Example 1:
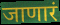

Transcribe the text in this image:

जाणारं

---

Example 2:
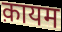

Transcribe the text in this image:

क़ायम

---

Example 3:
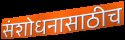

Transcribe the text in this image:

संशोधनासाठीच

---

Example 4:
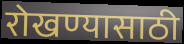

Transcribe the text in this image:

रोखण्यासाठी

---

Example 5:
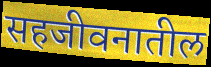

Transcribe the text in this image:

सहजीवनातील